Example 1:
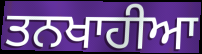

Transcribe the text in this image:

ਤਨਖਾਹੀਆ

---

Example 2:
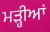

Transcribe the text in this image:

ਮੜ੍ਹੀਆਂ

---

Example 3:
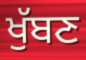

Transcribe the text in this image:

ਖੁੱਬਣ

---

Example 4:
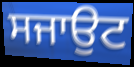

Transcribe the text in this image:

ਸਜਾਉਟ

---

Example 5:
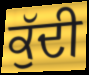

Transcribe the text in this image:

ਕੁੱਦੀ